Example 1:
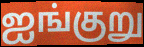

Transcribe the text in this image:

ஐங்குறு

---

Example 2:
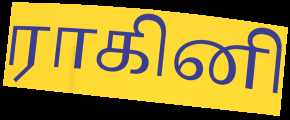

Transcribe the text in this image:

ராகினி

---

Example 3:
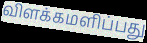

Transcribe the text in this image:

விளக்கமளிப்பது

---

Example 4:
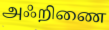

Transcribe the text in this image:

அஃறிணை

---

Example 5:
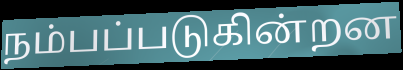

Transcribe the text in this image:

நம்பப்படுகின்றன